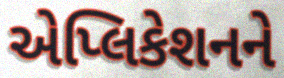
એપ્લિકેશનને